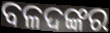
ବଳଦଙ୍କର